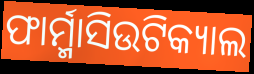
ଫାର୍ମ୍ମାସିଉଟିକ୍ୟାଲ